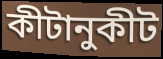
কীটানুকীট